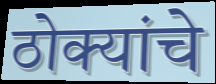
ठोक्यांचे